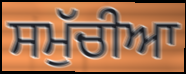
ਸਮੁੱਚੀਆ